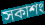
সকাশং